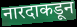
नारदाकडून